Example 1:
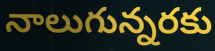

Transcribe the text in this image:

నాలుగున్నరకు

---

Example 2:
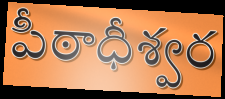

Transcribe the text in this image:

పీఠాధీశ్వర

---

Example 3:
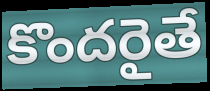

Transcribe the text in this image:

కొందరైతే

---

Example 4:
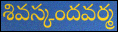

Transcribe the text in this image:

శివస్కందవర్మ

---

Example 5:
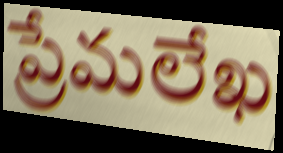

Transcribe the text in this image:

ప్రేమలేఖ